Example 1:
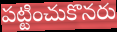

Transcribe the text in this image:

పట్టించుకొనరు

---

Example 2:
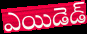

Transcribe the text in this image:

ఎయిడెడ్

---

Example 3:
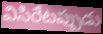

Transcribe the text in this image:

విసిరేటప్పుడు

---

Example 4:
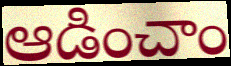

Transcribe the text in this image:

ఆడించాం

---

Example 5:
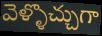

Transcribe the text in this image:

వెళ్ళొచ్చుగా